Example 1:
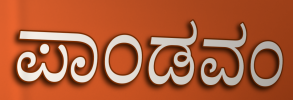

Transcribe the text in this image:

ಪಾಂಡವಂ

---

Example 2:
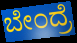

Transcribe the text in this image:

ಬೇಂದ್ರೆ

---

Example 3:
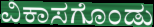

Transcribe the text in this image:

ವಿಕಾಸಗೊಂಡು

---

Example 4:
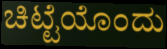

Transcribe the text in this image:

ಚಿಟ್ಟೆಯೊಂದು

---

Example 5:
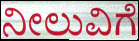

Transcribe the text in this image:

ನೀಲುವಿಗೆ